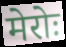
मेरोः